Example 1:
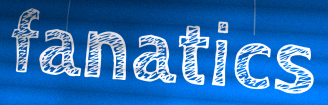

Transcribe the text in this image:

fanatics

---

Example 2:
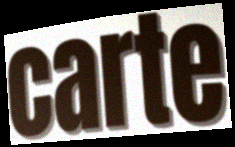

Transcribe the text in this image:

carte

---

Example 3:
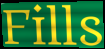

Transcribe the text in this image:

Fills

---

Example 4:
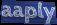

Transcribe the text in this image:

aaply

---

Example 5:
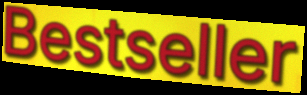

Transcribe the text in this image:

Bestseller